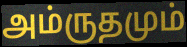
அம்ருதமும்